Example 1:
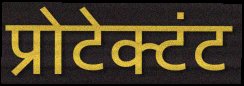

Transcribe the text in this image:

प्रोटेक्टंट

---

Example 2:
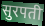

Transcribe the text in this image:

सुरपती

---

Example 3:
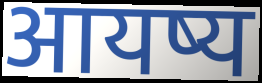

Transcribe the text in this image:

आयष्य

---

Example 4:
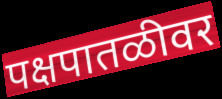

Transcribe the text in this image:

पक्षपातळीवर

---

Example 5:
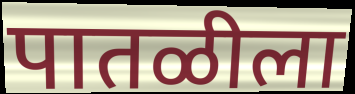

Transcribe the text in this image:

पातळीला